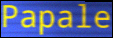
Papale